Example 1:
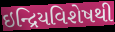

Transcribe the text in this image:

ઇન્દ્રિયવિશેષથી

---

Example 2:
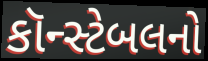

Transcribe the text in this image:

કૉન્સ્ટેબલનો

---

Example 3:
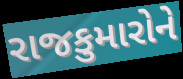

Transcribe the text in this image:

રાજકુમારોને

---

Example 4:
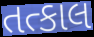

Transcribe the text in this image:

તત્કાલ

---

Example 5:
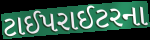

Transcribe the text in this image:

ટાઈપરાઈટરના